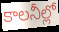
కాలనీల్లో